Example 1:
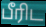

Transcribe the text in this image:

பீரிட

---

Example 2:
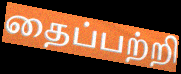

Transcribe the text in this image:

தைப்பற்றி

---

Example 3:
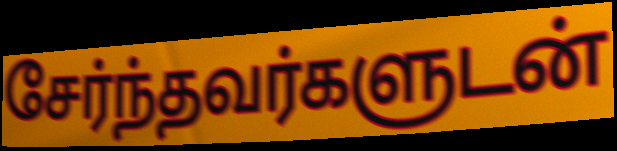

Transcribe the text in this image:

சேர்ந்தவர்களுடன்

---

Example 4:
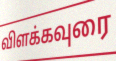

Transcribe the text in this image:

விளக்கவுரை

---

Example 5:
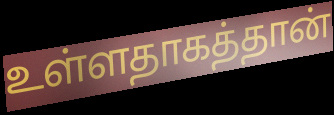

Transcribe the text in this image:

உள்ளதாகத்தான்